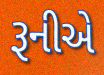
રૂનીએ